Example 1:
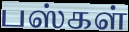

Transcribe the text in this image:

பஸ்கள்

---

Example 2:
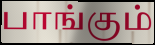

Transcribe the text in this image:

பாங்கும்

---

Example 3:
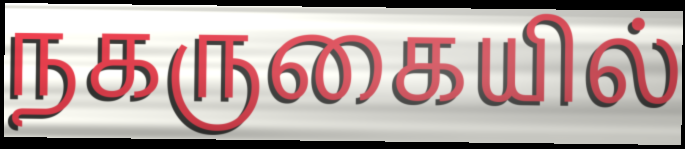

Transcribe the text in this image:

நகருகையில்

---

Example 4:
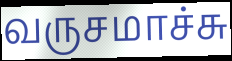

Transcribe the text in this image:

வருசமாச்சு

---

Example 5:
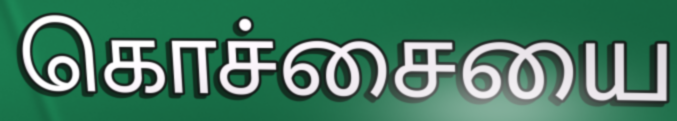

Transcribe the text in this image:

கொச்சையை